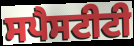
ਸਪੈਸਟੀਟੀ